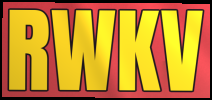
RWKV